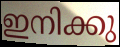
ഇനിക്കു